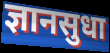
ज्ञानसुधा